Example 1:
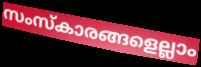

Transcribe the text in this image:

സംസ്കാരങ്ങളെല്ലാം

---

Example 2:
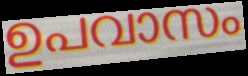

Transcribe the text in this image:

ഉപവാസം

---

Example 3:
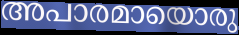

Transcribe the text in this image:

അപാരമായൊരു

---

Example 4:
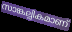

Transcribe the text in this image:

സാങ്കല്പികമാണ്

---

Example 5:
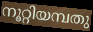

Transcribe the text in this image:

നൂറ്റിയമ്പതു